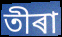
তীৰা